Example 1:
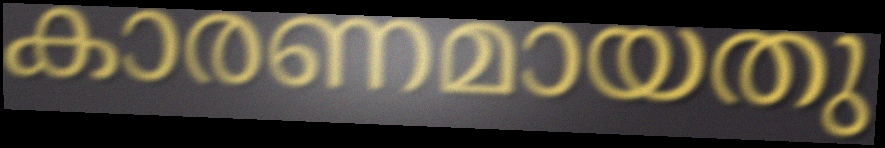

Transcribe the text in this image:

കാരണമായതു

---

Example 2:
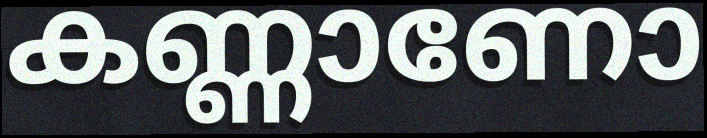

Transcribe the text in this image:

കണ്ണാണോ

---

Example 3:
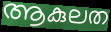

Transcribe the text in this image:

ആകുലത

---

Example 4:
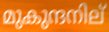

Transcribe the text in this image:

മുകുന്ദനില്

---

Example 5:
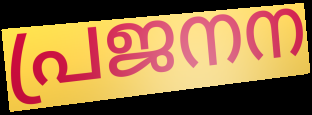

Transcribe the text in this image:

പ്രജനന